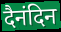
दैनंदिन